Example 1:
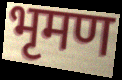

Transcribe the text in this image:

भृमण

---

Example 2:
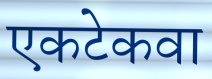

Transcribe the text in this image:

एकटेकवा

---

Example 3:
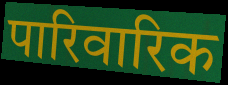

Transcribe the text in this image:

पारिवारिक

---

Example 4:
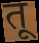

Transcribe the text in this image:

तू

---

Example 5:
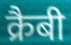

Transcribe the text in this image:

क्रैबी